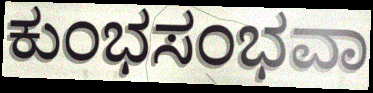
ಕುಂಭಸಂಭವಾ